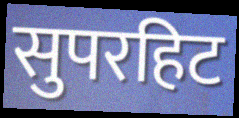
सुपरहिट